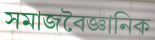
সমাজবৈজ্ঞানিক